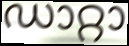
ഡാറ്റാ